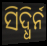
ସିଦ୍ଧିର୍ନ